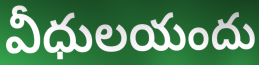
వీధులయందు